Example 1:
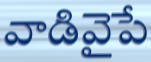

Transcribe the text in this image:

వాడివైపే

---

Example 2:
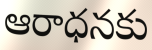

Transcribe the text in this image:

ఆరాధనకు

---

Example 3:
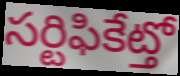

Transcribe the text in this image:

సర్టిఫికేట్తో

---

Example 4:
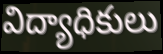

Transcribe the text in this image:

విద్యాధికులు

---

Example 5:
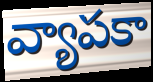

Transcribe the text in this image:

వ్యాపకా